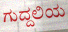
ಗುದ್ದಲಿಯ